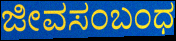
ಜೀವಸಂಬಂಧ